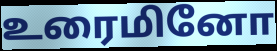
உரைமினோ